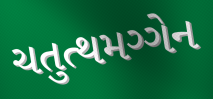
ચતુત્થમગ્ગેન